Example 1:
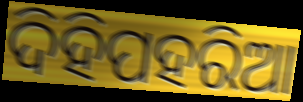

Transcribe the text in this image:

ଦିହିପହରିଆ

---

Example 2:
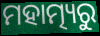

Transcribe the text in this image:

ମହାତ୍ମ୍ୟରୁ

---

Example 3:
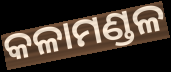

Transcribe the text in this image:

କଳାମଣ୍ଡଳ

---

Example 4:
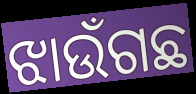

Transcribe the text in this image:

ଝାଉଁଗଛ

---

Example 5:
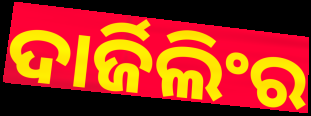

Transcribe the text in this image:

ଦାର୍ଜିଲିଂର